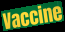
Vaccine